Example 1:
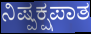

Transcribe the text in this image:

ನಿಷ್ಪಕ್ಷಪಾತ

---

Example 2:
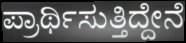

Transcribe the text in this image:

ಪ್ರಾರ್ಥಿಸುತ್ತಿದ್ದೇನೆ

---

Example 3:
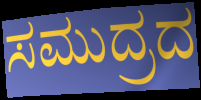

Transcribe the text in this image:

ಸಮುದ್ರದ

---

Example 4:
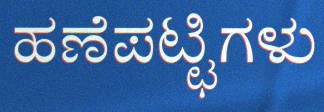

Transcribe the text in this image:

ಹಣೆಪಟ್ಟಿಗಳು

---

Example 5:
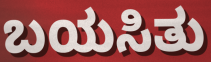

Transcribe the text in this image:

ಬಯಸಿತು